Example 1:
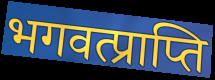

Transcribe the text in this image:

भगवत्प्राप्ति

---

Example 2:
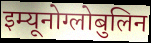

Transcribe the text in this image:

इम्यूनोग्लोबुलिन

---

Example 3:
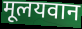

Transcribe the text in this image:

मूलयवान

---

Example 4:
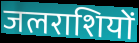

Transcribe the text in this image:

जलराशियों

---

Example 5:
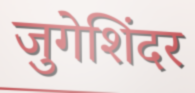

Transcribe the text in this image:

जुगेशिंदर